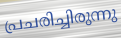
പ്രചരിച്ചിരുന്നു